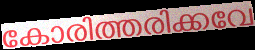
കോരിത്തരിക്കവേ